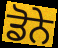
ਡੋਨੇ